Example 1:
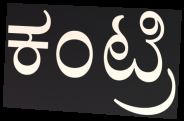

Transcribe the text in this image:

ಕಂಟ್ರಿ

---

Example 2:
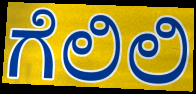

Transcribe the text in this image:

ಗೆಲಿಲಿ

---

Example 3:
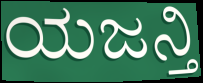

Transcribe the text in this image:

ಯಜನ್ತಿ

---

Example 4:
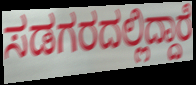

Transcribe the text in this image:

ಸಡಗರದಲ್ಲಿದ್ದಾರೆ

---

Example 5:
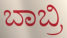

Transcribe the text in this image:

ಬಾಬ್ರಿ